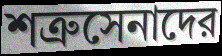
শত্রুসেনাদের